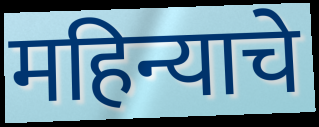
महिन्याचे